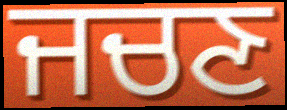
ਜਚਣ